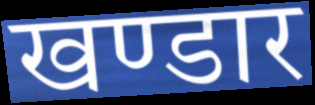
खण्डार